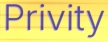
Privity